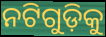
ନଟିଗୁଡ଼ିକୁ